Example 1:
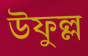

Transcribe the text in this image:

উফুল্ল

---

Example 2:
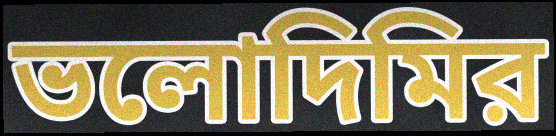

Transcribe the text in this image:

ভলোদিমির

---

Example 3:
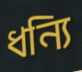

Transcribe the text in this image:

ধন্যি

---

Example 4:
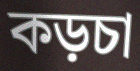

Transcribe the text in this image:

কড়চা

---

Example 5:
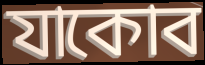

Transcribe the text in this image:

যাকোব